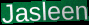
Jasleen